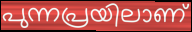
പുന്നപ്രയിലാണ്